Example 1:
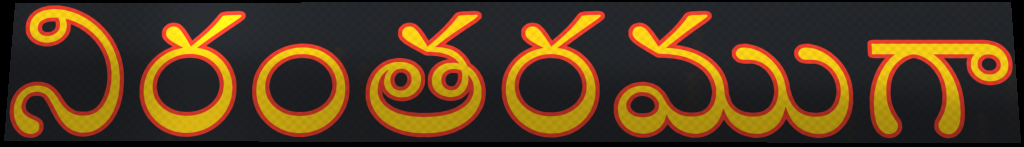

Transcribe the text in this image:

నిరంతరముగా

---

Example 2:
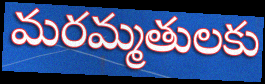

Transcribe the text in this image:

మరమ్మతులకు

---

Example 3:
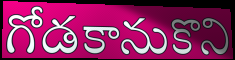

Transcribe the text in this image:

గోడకానుకొని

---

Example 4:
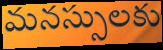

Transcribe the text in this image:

మనస్సులకు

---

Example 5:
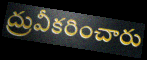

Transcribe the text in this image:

ద్రువీకరించారు